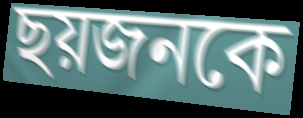
ছয়জনকে